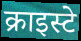
क्राइस्टे